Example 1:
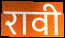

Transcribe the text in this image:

रावी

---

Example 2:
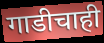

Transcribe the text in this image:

गाडीचाही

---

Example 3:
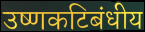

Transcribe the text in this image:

उष्णकटिबंधीय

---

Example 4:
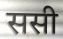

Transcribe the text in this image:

ससी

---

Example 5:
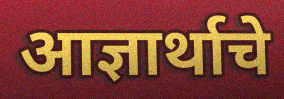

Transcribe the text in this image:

आज्ञार्थाचे